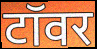
टॉवर